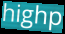
highp